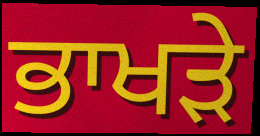
ਭਾਖੜੇ